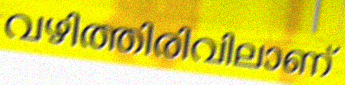
വഴിത്തിരിവിലാണ്